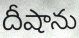
దీషాను